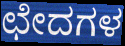
ಛೇದಗಳ